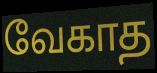
வேகாத